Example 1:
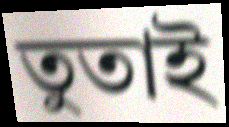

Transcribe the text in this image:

তুতাই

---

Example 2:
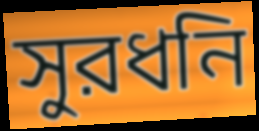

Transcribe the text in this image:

সুরধনি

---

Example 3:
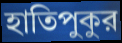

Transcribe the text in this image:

হাতিপুকুর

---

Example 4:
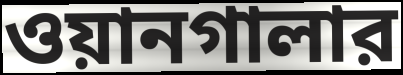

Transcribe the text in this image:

ওয়ানগালার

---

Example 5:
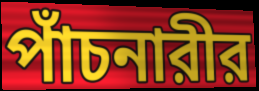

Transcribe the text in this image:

পাঁচনারীর